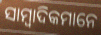
ସାମ୍ବାଦିକମାନେ